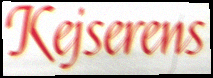
Kejserens